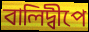
বালিদ্বীপে